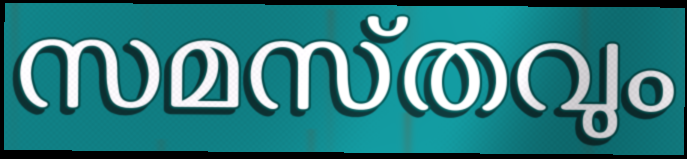
സമസ്‌തവും